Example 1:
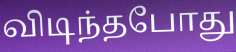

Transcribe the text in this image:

விடிந்தபோது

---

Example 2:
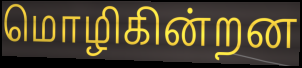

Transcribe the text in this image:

மொழிகின்றன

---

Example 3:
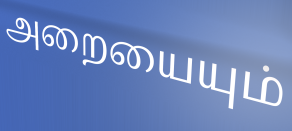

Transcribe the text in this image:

அறையையும்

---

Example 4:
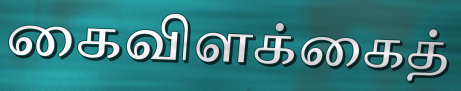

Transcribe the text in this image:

கைவிளக்கைத்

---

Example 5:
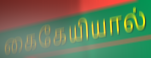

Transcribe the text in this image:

கைகேயியால்